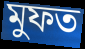
মুফত